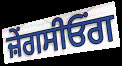
ਜ਼ੇਂਗਸੀਓਂਗ